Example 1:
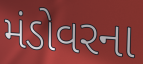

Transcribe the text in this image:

મંડોવરના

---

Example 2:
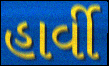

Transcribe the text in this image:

હાર્વી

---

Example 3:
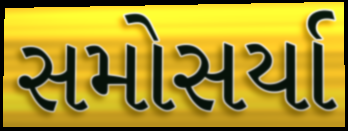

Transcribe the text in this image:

સમોસર્યા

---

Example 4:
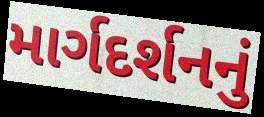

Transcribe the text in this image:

માર્ગદર્શનનું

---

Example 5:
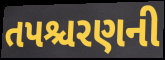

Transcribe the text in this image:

તપશ્ચરણની